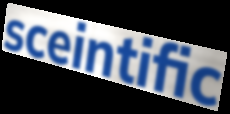
sceintific